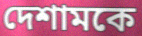
দেশামকে